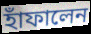
হাঁফালেন